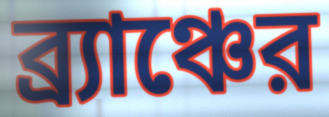
ব্র্যাঞ্চের